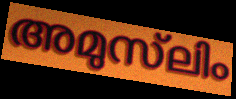
അമുസ്‌ലിം